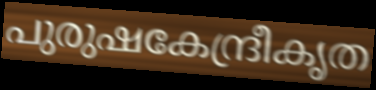
പുരുഷകേന്ദ്രീകൃത